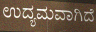
ಉದ್ಯಮವಾಗಿದೆ